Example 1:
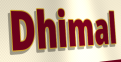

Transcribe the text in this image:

Dhimal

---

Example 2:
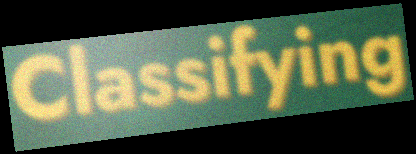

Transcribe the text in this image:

Classifying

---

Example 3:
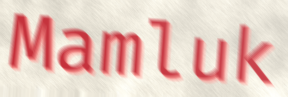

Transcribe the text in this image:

Mamluk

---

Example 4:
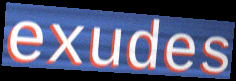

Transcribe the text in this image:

exudes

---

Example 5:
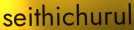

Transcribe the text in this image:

seithichurul